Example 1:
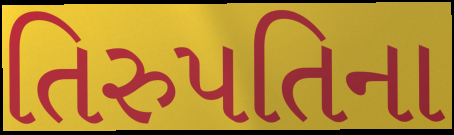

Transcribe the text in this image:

તિરુપતિના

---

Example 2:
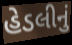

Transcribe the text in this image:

હેડલીનું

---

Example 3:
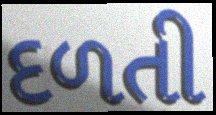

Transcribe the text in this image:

દળતી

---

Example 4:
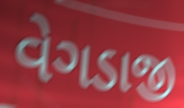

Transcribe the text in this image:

વેગડાજી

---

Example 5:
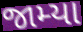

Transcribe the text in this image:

જામ્યા